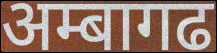
अम्बागढ